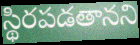
స్థిరపడతానని